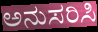
ಅನುಸರಿಸಿ